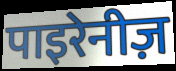
पाइरेनीज़